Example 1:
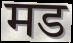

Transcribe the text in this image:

मड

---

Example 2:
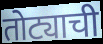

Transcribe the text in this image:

तोट्याची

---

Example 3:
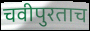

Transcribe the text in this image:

चवीपुरताच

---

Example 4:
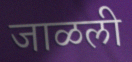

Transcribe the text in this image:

जाळली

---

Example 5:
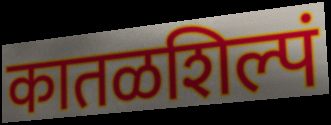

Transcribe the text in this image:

कातळशिल्पं